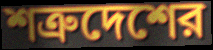
শত্রুদেশের